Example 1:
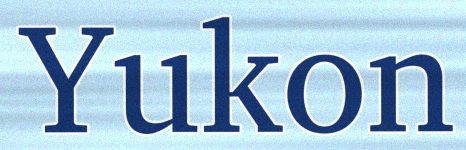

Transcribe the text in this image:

Yukon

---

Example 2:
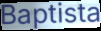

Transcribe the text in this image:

Baptista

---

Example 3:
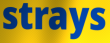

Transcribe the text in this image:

strays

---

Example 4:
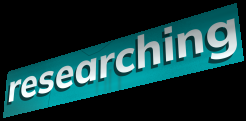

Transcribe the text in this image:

researching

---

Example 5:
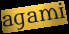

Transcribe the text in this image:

agami